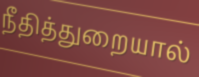
நீதித்துறையால்